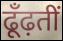
ढूँढ़तीं